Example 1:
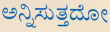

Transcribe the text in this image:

ಅನ್ನಿಸುತ್ತದೋ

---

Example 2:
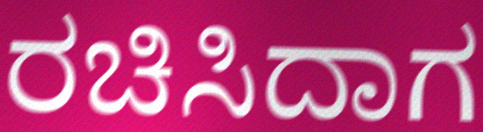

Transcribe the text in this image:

ರಚಿಸಿದಾಗ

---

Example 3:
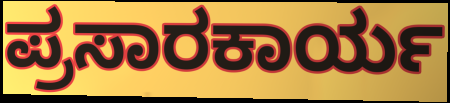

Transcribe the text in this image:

ಪ್ರಸಾರಕಾರ್ಯ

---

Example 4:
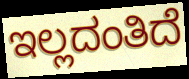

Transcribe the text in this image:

ಇಲ್ಲದಂತಿದೆ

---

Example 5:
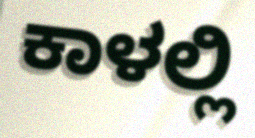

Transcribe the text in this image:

ಕಾಳಲ್ಲಿ